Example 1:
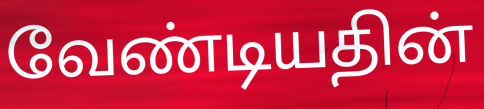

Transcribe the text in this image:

வேண்டியதின்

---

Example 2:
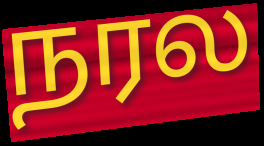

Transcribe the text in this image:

நரல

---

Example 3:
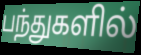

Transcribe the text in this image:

பந்துகளில்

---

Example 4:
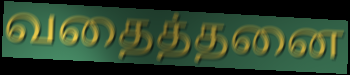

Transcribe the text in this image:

வதைத்தனை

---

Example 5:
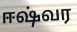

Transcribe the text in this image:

ஈஷ்வர